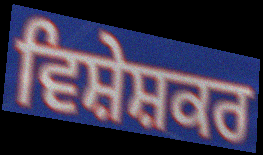
ਵਿਸ਼ੇਸ਼ਕਰ